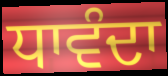
ਧਾਵੰਦਾ